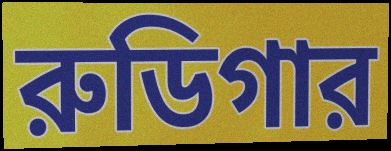
রুডিগার